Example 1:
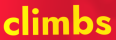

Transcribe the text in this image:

climbs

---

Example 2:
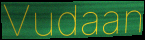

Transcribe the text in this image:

Vudaan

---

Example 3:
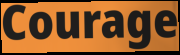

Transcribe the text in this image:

Courage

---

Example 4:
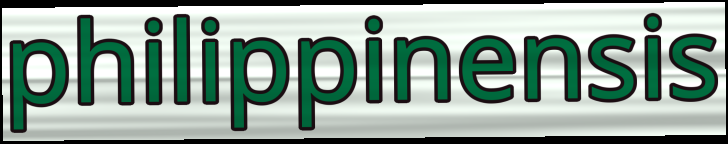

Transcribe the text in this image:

philippinensis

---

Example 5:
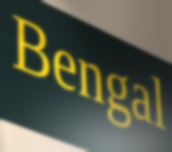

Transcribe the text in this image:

Bengal